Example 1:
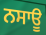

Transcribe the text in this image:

ਨਸਾਊ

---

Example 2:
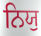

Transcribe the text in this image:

ਨਿਯੁ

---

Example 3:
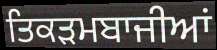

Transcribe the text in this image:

ਤਿਕੜਮਬਾਜੀਆਂ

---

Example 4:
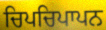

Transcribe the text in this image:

ਚਿਪਚਿਪਾਪਨ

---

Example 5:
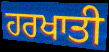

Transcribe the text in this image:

ਹਰਖਾਤੀ